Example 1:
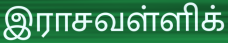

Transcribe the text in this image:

இராசவள்ளிக்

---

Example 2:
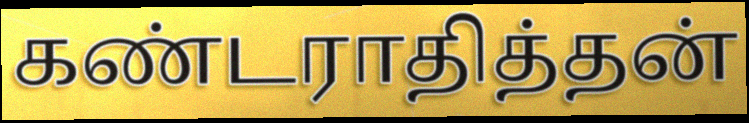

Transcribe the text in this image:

கண்டராதித்தன்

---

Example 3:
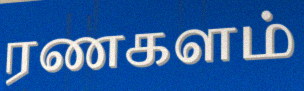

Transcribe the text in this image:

ரணகளம்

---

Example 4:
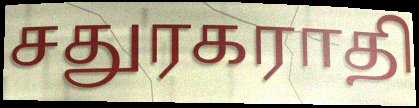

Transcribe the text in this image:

சதுரகராதி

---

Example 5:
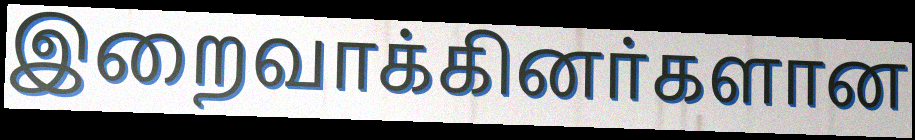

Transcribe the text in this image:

இறைவாக்கினர்களான